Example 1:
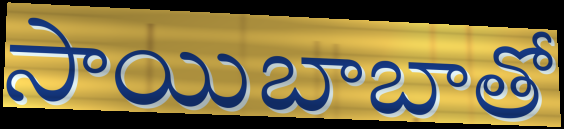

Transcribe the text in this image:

సాయిబాబాతో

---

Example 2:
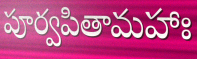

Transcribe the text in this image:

పూర్వపితామహాః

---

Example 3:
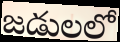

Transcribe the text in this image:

జడులలో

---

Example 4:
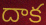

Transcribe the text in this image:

దాక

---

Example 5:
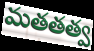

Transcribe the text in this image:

మతతత్వ